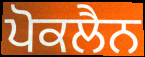
ਪੋਕਲੈਨ